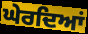
ਘੇਰਦਿਆਂ